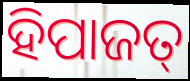
ହିପାଜତ୍